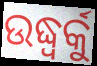
ଉଦ୍ଧ୍ୱର୍କୁ